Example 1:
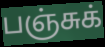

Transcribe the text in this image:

பஞ்சுக்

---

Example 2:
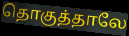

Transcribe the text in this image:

தொகுத்தாலே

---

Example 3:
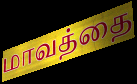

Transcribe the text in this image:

மாவத்தை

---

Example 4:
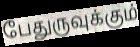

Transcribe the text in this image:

பேதுருவுக்கும்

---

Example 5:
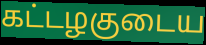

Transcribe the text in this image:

கட்டழகுடைய